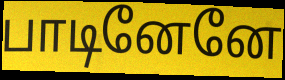
பாடினேனே